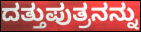
ದತ್ತುಪುತ್ರನನ್ನು